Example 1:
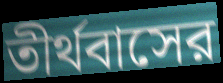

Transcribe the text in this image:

তীর্থবাসের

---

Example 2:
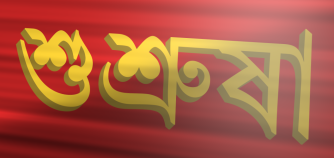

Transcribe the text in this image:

শুশ্রুষা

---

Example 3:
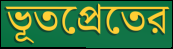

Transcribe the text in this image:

ভূতপ্রেতের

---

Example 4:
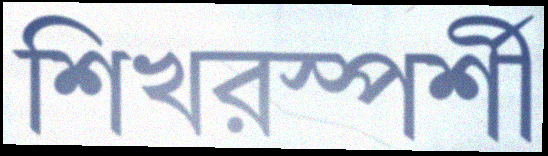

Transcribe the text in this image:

শিখরস্পর্শী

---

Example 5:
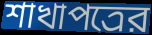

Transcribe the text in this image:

শাখাপত্রের